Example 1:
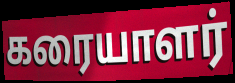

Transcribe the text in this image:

கரையாளர்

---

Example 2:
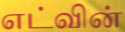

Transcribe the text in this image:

எட்வின்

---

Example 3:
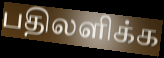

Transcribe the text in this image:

பதிலளிக்க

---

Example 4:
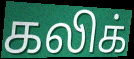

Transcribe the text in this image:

கலிக்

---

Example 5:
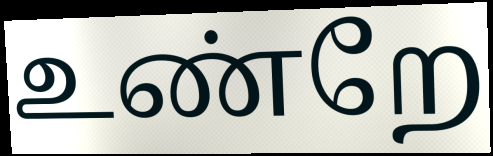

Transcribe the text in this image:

உண்றே